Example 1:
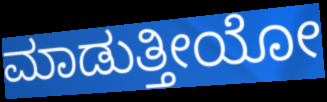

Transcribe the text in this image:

ಮಾಡುತ್ತೀಯೋ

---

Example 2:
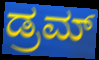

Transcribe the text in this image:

ಡ್ರಮ್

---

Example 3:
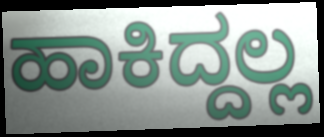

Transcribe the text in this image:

ಹಾಕಿದ್ದಲ್ಲ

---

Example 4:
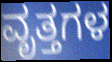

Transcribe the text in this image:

ವೃತ್ತಗಳ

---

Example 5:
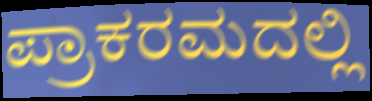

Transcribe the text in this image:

ಪ್ರಾಕರಮದಲ್ಲಿ